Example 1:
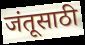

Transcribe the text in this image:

जंतूसाठी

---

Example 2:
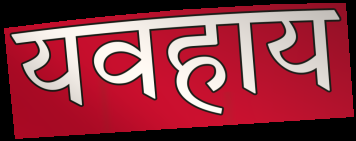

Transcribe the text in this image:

यवहाय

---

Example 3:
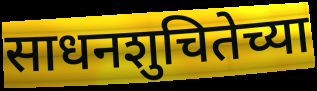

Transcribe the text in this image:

साधनशुचितेच्या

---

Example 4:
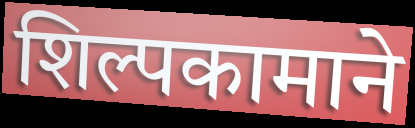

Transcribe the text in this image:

शिल्पकामाने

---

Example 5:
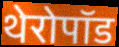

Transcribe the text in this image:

थेरोपॉड